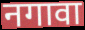
नगावा